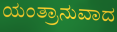
ಯಂತ್ರಾನುವಾದ